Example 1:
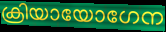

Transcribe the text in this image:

ക്രിയായോഗേന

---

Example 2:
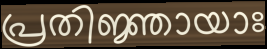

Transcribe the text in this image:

പ്രതിജ്ഞായാഃ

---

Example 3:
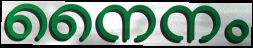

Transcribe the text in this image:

നൈനം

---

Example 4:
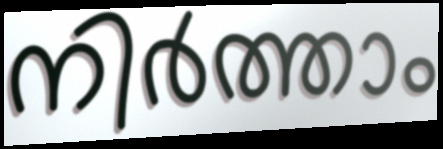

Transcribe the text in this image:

നിർത്താം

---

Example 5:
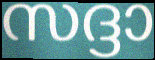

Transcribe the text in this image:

സദ്ദാ